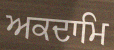
ਅਕਦਾਮਿ